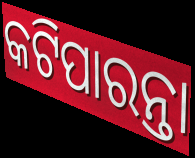
କଟିପାରନ୍ତା